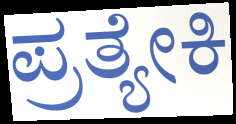
ಪ್ರತ್ಯೇಕಿ